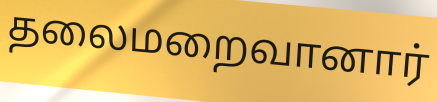
தலைமறைவானார்